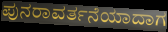
ಪುನರಾವರ್ತನೆಯಾದಾಗ